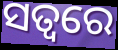
ସତ୍ଵରେ